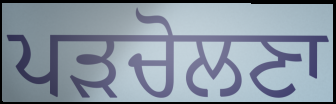
ਪੜਚੋਲਣਾ